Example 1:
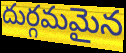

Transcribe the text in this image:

దుర్గమమైన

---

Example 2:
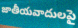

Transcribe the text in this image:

జాతీయవాదులపై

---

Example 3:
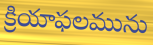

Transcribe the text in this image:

క్రియాఫలమును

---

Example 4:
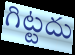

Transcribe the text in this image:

గిట్టదు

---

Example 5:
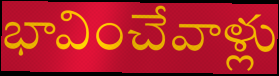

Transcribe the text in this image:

భావించేవాళ్లు